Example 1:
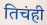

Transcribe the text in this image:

तिचंही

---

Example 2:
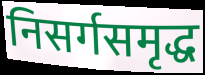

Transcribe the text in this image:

निसर्गसमृद्ध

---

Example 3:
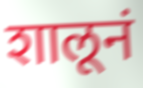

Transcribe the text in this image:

शालूनं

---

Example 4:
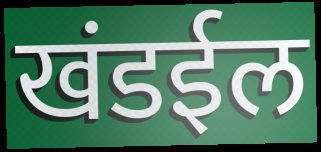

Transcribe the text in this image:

खंडईल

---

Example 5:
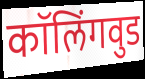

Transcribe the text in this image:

कॉलिंगवुड